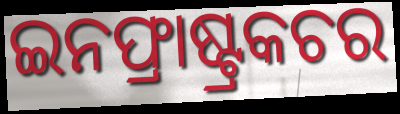
ଇନଫ୍ରାଷ୍ଟ୍ରକଚର